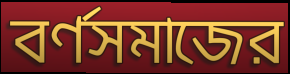
বর্ণসমাজের